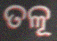
ତଳୂ